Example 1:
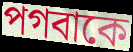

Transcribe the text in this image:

পগবাকে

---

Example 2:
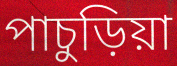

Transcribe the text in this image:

পাচুড়িয়া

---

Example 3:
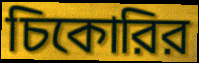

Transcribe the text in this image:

চিকোরির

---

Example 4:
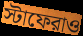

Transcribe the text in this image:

স্টাফেরাও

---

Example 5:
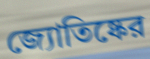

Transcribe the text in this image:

জ্যোতিষ্কের